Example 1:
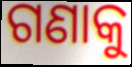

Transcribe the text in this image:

ଗଣାକୁ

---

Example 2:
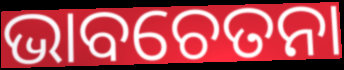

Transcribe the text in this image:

ଭାବଚେତନା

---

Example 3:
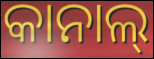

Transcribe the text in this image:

କାନାଲ୍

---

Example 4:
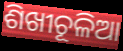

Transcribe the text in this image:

ଶିଖୀଚୂଳିଆ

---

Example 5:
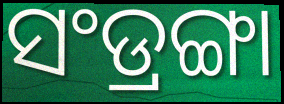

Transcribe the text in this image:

ସଂଡ୍ରଙ୍ଗା